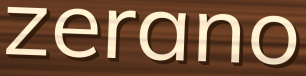
zerano